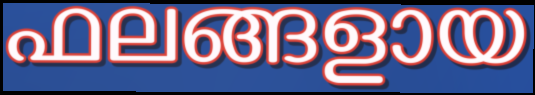
ഫലങ്ങളായ